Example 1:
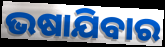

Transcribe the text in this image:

ଭଷାଯିବାର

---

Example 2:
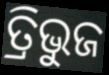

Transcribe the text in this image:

ତ୍ରିଭୁଜ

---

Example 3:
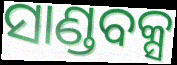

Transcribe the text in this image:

ସାଣ୍ଡବକ୍ସ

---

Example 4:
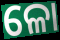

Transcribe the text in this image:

ଳୋ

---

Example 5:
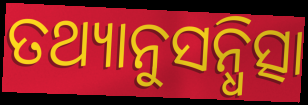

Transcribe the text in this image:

ତଥ୍ୟାନୁସନ୍ଧିତ୍ସା